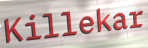
Killekar